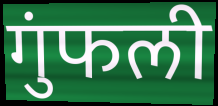
गुंफली